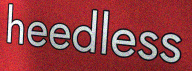
heedless